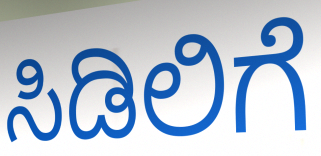
ಸಿಡಿಲಿಗೆ